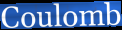
Coulomb